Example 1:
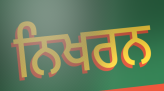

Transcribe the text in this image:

ਨਿਖਰਨ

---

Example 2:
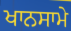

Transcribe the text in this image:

ਖਾਨਸਾਮੇ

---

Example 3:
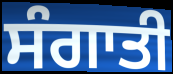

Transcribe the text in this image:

ਸੰਗਾਤੀ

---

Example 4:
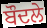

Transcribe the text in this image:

ਬੌਦਲੇ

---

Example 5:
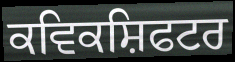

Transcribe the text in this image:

ਕਵਿਕਸ਼ਿਫਟਰ